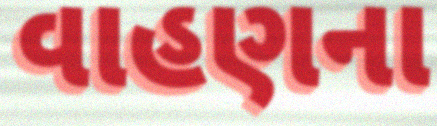
વાહણના